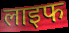
लाइफ